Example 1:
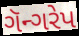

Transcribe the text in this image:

ગૅન્ગરેપ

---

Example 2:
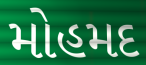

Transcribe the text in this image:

મોહમદ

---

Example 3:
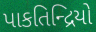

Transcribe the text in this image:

પાકતિન્દ્રિયો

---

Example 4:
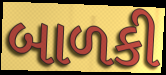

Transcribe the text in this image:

બાળકી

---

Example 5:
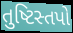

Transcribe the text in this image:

તુષ્ટિસ્તપો